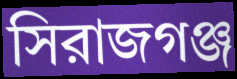
সিরাজগঞ্জ